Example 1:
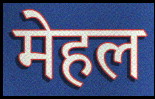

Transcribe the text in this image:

मेहल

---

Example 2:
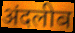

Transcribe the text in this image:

अंदलीब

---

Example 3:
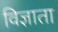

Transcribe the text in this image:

विज्ञाता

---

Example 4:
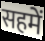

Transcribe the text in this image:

सहमें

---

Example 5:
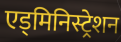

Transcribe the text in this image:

एड्मिनिस्ट्रेशन